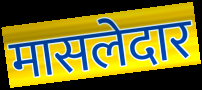
मासलेदार